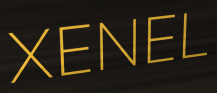
XENEL